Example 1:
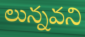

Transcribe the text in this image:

లున్నవని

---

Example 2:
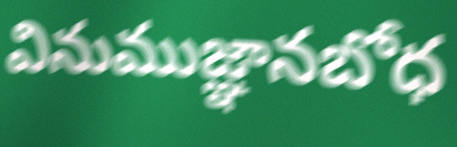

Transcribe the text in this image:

వినుముజ్ఞానబోధ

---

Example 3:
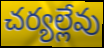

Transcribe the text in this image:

చర్యల్లేవు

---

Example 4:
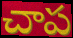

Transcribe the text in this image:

చాప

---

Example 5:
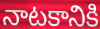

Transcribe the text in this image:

నాటకానికి